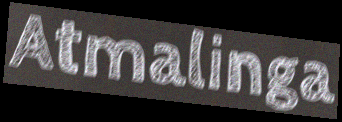
Atmalinga